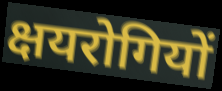
क्षयरोगियों